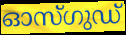
ഓസ്ഗുഡ്